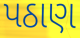
પઠાણ